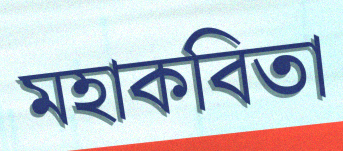
মহাকবিতা